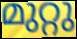
മുറ്റു